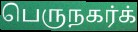
பெருநகர்க்